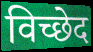
विच्छेद